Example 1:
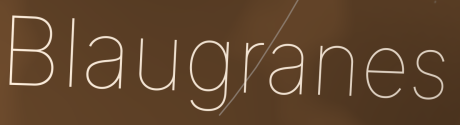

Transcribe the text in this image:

Blaugranes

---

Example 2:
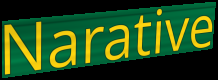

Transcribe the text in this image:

Narative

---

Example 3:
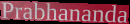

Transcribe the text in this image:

Prabhananda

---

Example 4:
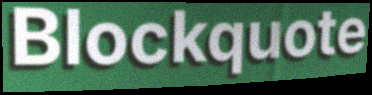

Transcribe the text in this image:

Blockquote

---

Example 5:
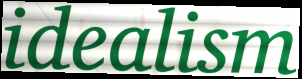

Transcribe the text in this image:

idealism